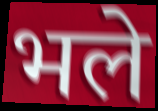
भले